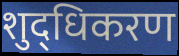
शुद्धिकरण